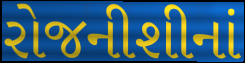
રોજનીશીનાં